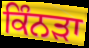
ਕਿੰਨੜਾ